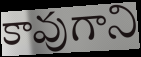
కావుగాని